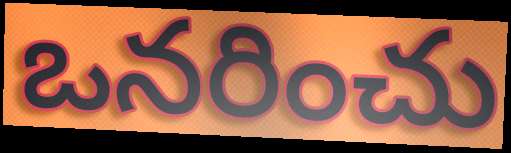
ఒనరించు